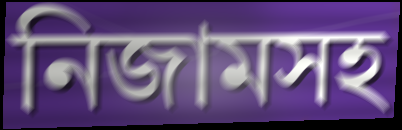
নিজামসহ